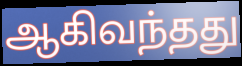
ஆகிவந்தது